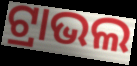
ଟ୍ରାଭଲ